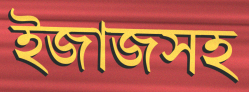
ইজাজসহ